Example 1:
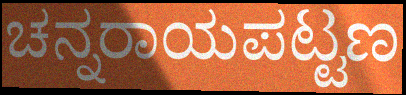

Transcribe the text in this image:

ಚನ್ನರಾಯಪಟ್ಟಣ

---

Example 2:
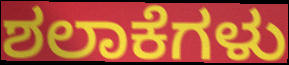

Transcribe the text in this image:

ಶಲಾಕೆಗಳು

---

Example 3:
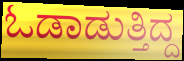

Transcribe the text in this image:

ಓಡಾಡುತ್ತಿದ್ದ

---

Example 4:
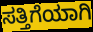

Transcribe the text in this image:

ಸತ್ತಿಗೆಯಾಗಿ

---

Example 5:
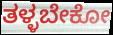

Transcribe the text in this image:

ತಳ್ಳಬೇಕೋ